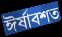
ঈর্ষাবশত